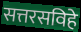
सत्तरसविहे